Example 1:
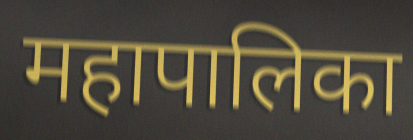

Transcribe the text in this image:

महापालिका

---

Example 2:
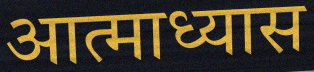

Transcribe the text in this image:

आत्माध्यास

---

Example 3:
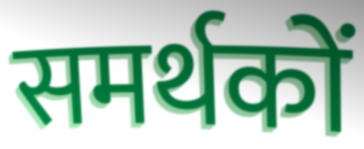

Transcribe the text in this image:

समर्थकों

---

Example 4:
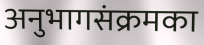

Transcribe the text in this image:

अनुभागसंक्रमका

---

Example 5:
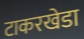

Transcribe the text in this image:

टाकरखेडा